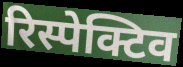
रिस्पेक्टिव